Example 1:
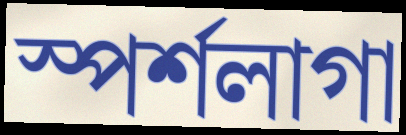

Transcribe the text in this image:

স্পর্শলাগা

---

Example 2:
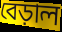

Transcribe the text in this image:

বেড়াল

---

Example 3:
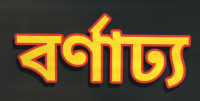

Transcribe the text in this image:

বর্ণাঢ্য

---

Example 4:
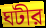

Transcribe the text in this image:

ঘটীর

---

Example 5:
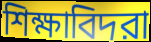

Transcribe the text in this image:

শিক্ষাবিদরা